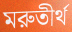
মরুতীর্থ